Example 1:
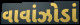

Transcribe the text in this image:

વાવાંઝોડાં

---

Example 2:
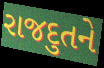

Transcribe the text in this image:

રાજદુતને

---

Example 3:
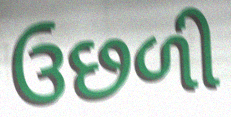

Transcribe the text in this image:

ઉછળી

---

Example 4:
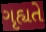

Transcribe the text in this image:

ગૃહ્યતે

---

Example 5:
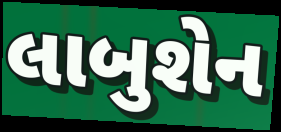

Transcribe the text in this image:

લાબુશેન